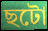
ছটো